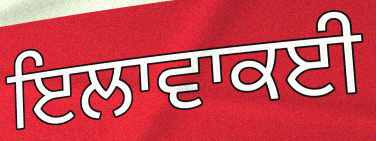
ਇਲਾਵਾਕਈ